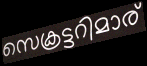
സെക്രട്ടറിമാര്